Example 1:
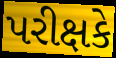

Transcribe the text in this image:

પરીક્ષકે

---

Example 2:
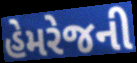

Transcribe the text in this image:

હેમરેજની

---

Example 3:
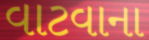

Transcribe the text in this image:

વાટવાના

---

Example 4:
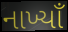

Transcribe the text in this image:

નાખ્યાઁ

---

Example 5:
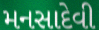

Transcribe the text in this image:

મનસાદેવી